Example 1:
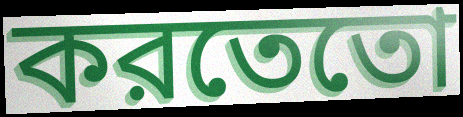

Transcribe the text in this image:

করতেতো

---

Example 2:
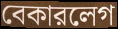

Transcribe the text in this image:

বেকারলেগ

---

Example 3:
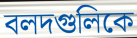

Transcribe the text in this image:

বলদগুলিকে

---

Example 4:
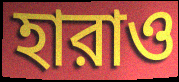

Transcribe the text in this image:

হারাও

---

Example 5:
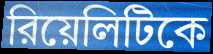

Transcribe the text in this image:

রিয়েলিটিকে